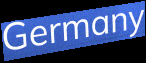
Germany